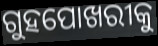
ଗୁହପୋଖରୀକୁ